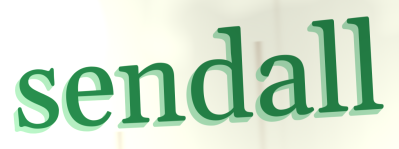
sendall